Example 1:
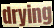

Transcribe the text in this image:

drying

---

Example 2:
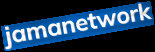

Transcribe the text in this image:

jamanetwork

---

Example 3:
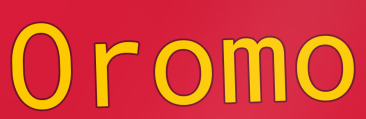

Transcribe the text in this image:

Oromo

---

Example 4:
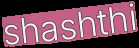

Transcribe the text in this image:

shashthi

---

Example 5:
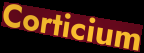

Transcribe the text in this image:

Corticium